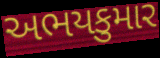
અભયકુમાર